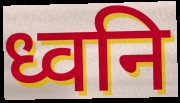
ध्वनि